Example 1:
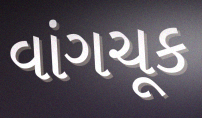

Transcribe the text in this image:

વાંગચૂક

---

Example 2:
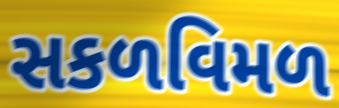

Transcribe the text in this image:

સકળવિમળ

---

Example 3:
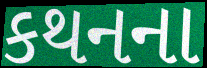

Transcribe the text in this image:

કથનના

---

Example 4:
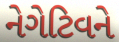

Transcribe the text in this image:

નેગેટિવને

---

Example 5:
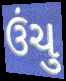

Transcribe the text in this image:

ઉંચુ